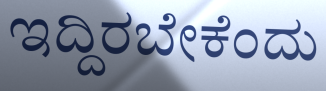
ಇದ್ದಿರಬೇಕೆಂದು